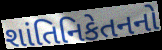
શાંતિનિકેતનનો